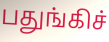
பதுங்கிச்